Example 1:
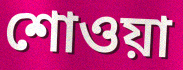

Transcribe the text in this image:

শোওয়া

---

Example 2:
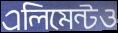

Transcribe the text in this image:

এলিমেন্টও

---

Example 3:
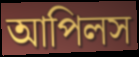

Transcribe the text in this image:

আপিলস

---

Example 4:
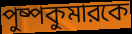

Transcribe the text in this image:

পুষ্পকুমারকে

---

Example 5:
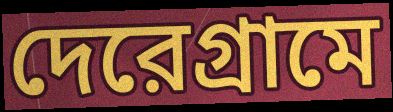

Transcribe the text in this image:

দেরেগ্রামে